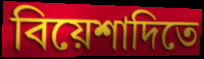
বিয়েশাদিতে